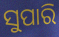
ସୁପାରି